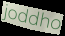
joddho